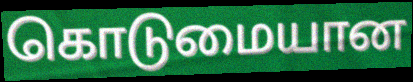
கொடுமையான